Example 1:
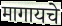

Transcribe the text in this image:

मागायचे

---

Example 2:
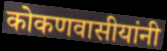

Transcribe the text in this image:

कोकणवासीयांनी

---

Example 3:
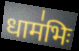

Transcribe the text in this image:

धाम॑भिः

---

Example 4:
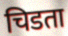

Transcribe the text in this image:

चिडता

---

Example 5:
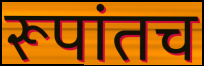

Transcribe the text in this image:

रूपांतच